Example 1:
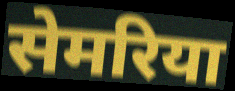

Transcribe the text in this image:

सेमरिया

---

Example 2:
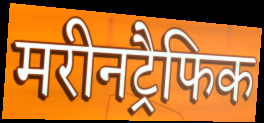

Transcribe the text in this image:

मरीनट्रैफिक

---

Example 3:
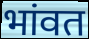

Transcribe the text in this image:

भांवत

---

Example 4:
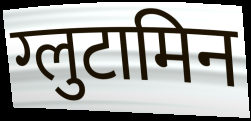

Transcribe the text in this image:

ग्लुटामिन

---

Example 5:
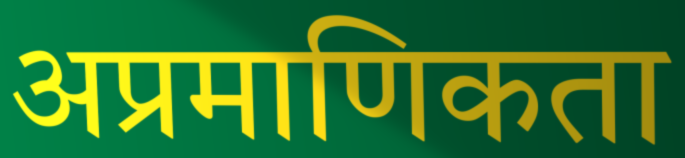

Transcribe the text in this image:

अप्रमाणिकता